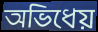
অভিধেয়